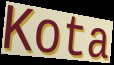
Kota